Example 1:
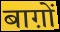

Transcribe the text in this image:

बाग़ों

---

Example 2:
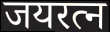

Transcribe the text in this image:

जयरत्न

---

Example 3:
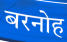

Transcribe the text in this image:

बरनोह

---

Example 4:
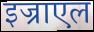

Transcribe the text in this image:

इज्राएल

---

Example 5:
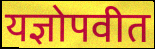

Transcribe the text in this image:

यज्ञोपवीत